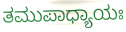
ತಮುಪಾಧ್ಯಾಯಃ